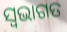
ସ୍ଵଭାଗତ